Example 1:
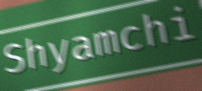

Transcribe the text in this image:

Shyamchi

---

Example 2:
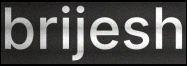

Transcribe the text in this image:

brijesh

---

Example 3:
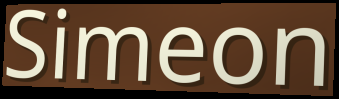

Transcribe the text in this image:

Simeon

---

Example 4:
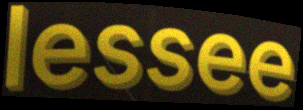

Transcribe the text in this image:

lessee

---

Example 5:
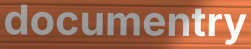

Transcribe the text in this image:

documentry